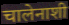
चालेनाशी